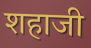
शहाजी